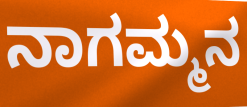
ನಾಗಮ್ಮನ